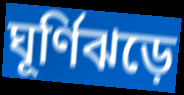
ঘূর্ণিঝড়ে